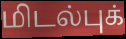
மிடல்புக்